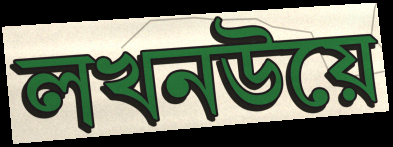
লখনউয়ে